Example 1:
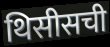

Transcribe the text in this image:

थिसीसची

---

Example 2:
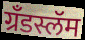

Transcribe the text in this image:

ग्रँडस्लॅम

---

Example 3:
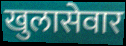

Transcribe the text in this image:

खुलासेवार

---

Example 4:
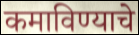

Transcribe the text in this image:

कमाविण्याचे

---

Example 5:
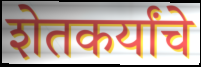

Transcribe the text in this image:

शेतकर्यांचे